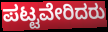
ಪಟ್ಟವೇರಿದರು